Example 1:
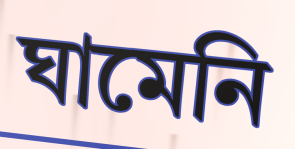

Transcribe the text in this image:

ঘামেনি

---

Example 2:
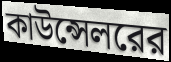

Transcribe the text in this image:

কাউন্সেলরের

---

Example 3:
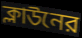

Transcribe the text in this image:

ক্লাউনের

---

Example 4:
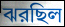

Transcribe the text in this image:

ঝরছিল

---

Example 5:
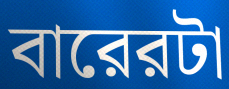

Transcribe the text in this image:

বারেরটা